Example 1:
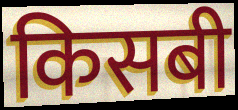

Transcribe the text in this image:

किसबी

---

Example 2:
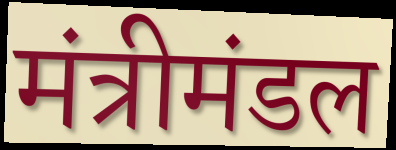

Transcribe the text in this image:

मंत्रीमंडल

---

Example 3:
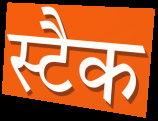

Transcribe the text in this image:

स्‍टैक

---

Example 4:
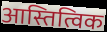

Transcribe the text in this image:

आस्तित्विक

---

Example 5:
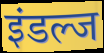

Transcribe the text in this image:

इंडल्ज